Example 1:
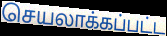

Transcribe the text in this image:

செயலாக்கப்பட்ட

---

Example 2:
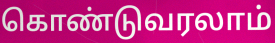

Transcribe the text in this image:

கொண்டுவரலாம்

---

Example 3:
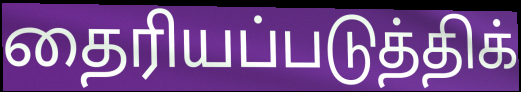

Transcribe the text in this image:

தைரியப்படுத்திக்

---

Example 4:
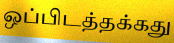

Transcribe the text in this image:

ஒப்பிடத்தக்கது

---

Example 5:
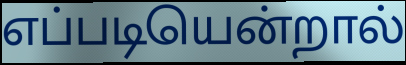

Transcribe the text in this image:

எப்படியென்றால்